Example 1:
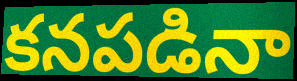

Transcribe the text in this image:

కనపడినా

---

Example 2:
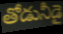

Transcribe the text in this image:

తోడునీడై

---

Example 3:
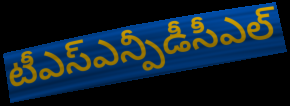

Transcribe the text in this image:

టీఎస్ఎన్పీడీసీఎల్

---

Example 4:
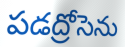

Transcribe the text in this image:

పడద్రోసెను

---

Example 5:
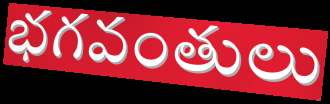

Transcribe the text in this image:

భగవంతులు